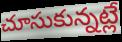
చూసుకున్నట్లే